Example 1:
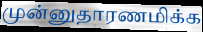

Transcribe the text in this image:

முன்னுதாரணமிக்க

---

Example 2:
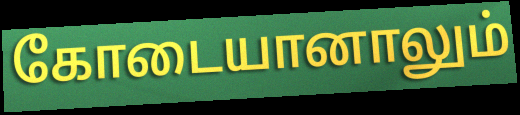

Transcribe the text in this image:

கோடையானாலும்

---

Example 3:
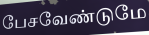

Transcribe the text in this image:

பேசவேண்டுமே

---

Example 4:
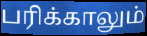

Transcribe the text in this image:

பரிக்காலும்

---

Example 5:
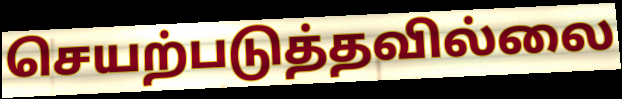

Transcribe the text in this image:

செயற்படுத்தவில்லை